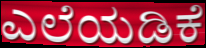
ಎಲೆಯಡಿಕೆ